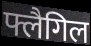
फ्लैगिल